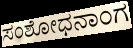
ಸಂಶೋಧನಾಂಗ